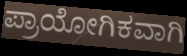
ಪ್ರಾಯೋಗಿಕವಾಗಿ